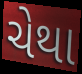
ચેથા